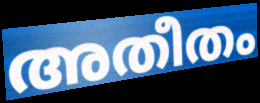
അതീതം